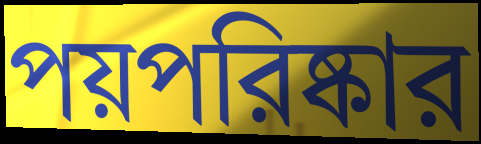
পয়পরিষ্কার